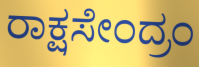
ರಾಕ್ಷಸೇಂದ್ರಂ